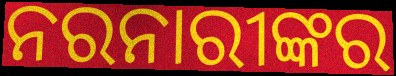
ନରନାରୀଙ୍କର